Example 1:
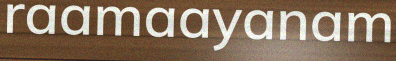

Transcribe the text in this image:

raamaayanam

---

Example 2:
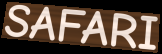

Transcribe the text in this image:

SAFARI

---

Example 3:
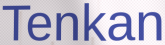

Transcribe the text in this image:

Tenkan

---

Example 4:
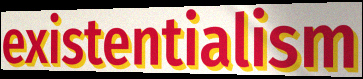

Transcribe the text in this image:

existentialism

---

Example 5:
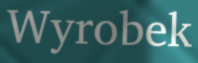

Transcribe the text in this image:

Wyrobek